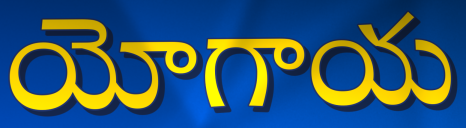
యోగాయ